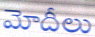
మోదీలు